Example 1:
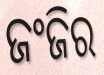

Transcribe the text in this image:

ଜଂଜିର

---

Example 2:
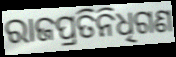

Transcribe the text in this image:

ରାଜପ୍ରତିନିଧିଗଣ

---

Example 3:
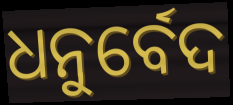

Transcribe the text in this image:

ଧନୁର୍ବେଦ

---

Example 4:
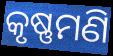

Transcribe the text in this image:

କୃଷ୍ଣମଣି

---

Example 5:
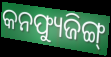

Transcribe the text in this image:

କନଫ୍ୟୁଜିଙ୍ଗ୍